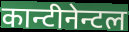
कान्टीनेन्टल